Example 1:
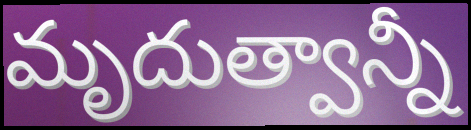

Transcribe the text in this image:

మృదుత్వాన్నీ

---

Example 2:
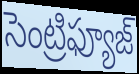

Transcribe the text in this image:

సెంట్రిఫ్యూజ్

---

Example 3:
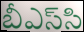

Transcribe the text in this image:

బీఎస్‌సి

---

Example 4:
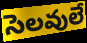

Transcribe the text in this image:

సెలవులే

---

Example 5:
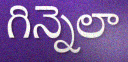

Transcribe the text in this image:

గిన్నెలా